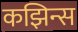
कझिन्स